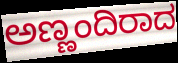
ಅಣ್ಣಂದಿರಾದ